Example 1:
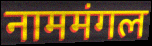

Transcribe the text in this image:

नाममंगल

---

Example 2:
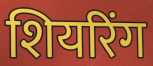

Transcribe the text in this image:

शियरिंग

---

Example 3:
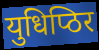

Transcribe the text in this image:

युधिप्ठिर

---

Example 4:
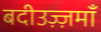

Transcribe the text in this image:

बदीउज़्ज़माँ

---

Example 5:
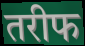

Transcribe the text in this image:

तरीफ